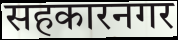
सहकारनगर